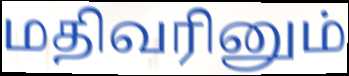
மதிவரினும்